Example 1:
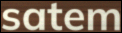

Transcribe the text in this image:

satem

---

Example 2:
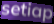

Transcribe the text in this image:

setiap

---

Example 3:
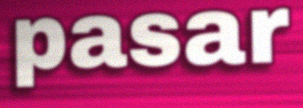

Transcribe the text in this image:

pasar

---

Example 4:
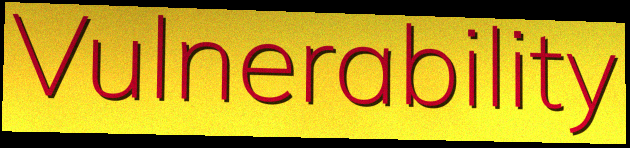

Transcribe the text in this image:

Vulnerability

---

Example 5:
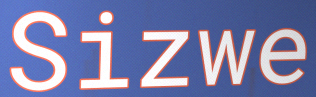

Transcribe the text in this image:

Sizwe